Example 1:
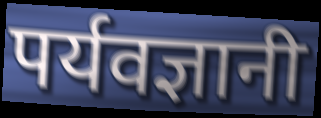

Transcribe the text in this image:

पर्यवज्ञानी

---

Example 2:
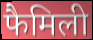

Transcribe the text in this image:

फैमिली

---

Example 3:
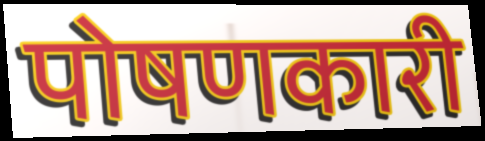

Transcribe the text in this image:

पोषणकारी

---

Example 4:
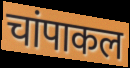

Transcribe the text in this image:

चांपाकल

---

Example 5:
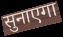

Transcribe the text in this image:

सुनाएगा